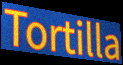
Tortilla